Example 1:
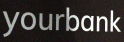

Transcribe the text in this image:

yourbank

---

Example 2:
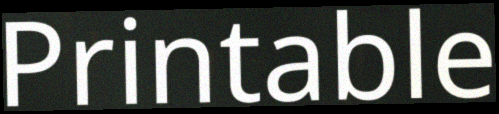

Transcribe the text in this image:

Printable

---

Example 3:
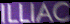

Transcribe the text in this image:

ILLIAC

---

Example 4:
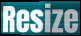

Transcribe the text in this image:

Resize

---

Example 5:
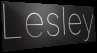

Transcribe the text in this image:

Lesley